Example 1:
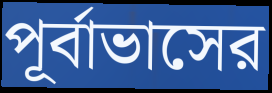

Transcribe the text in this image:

পূর্বাভাসের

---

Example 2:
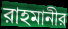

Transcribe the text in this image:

রাহমানীর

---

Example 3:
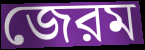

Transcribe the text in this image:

জেরম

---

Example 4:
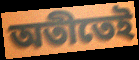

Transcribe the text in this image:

অতীতেই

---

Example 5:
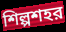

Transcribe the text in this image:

শিল্পশহর